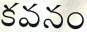
కవనం